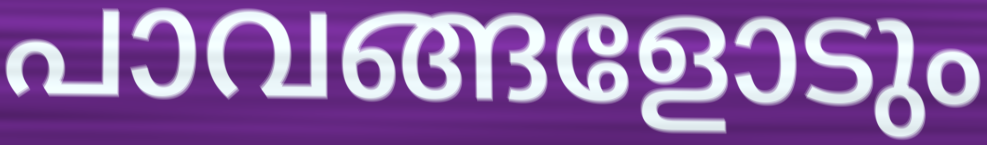
പാവങ്ങളോടും